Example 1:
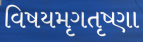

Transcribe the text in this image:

વિષયમૃગતૃષ્ણા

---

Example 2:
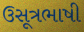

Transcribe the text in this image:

ઉસૂત્રભાષી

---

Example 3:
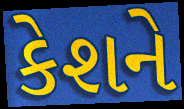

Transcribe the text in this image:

કેશને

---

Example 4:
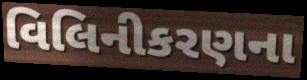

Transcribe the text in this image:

વિલિનીકરણના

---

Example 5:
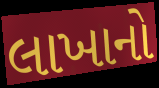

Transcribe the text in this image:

લાખાનો